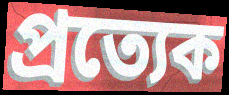
প্রত্যেক